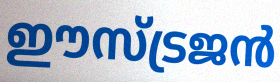
ഈസ്ട്രജൻ